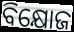
ବିକ୍ଷୋଜ